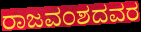
ರಾಜವಂಶದವರ